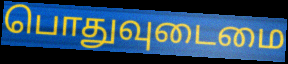
பொதுவுடைமை